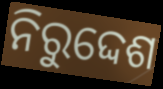
ନିରୁଦ୍ଦେଶ